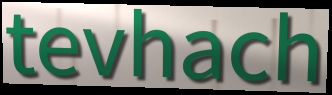
tevhach